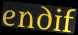
endif